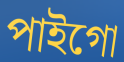
পাইগো